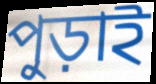
পুড়াই